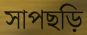
সাপছড়ি